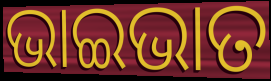
ଭାଇଭାତ